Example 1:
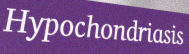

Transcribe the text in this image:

Hypochondriasis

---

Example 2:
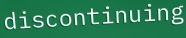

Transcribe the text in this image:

discontinuing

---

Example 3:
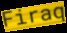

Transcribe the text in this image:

Firaq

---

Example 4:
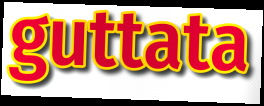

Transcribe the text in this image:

guttata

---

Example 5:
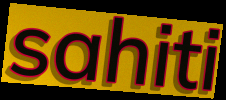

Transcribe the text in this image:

sahiti